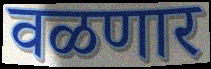
वळणार